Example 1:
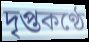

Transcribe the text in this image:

দৃপ্তকণ্ঠে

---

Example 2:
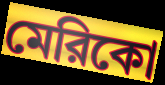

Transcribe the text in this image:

মেরিকো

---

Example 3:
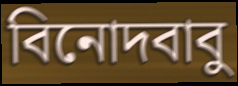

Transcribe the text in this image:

বিনোদবাবু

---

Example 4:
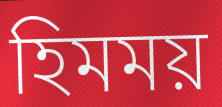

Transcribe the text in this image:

হিমময়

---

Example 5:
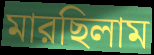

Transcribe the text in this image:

মারছিলাম